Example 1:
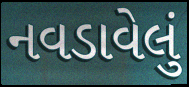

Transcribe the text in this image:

નવડાવેલું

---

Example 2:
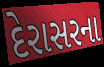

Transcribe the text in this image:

દેરાસરના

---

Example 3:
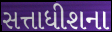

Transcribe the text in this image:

સત્તાધીશના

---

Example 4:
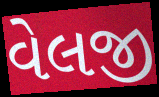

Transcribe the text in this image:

વેલજી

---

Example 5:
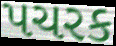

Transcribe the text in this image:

પચરક